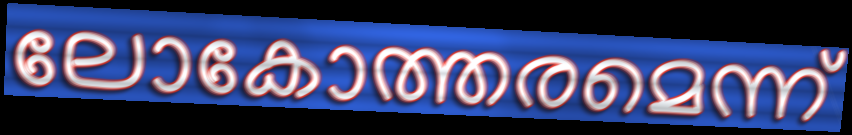
ലോകോത്തരമെന്ന്